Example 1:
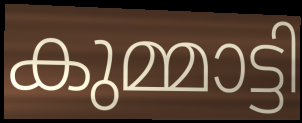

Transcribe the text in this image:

കുമ്മാട്ടി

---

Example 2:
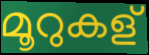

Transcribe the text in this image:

മൂറുകള്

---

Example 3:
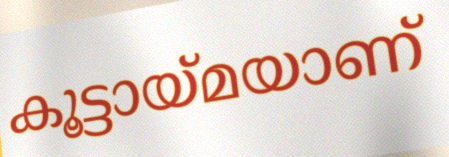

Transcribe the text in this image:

കൂട്ടായ്മയാണ്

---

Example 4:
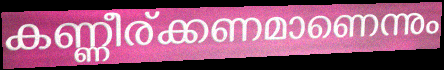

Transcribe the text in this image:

കണ്ണീര്ക്കണമാണെന്നും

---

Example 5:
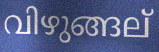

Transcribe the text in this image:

വിഴുങ്ങല്